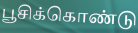
பூசிக்கொண்டு